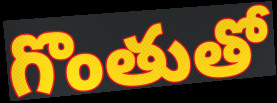
గొంతుతో